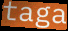
taga